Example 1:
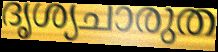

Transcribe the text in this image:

ദൃശ്യചാരുത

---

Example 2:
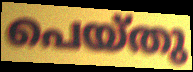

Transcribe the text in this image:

പെയ്തു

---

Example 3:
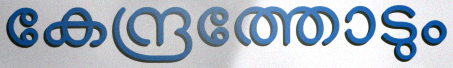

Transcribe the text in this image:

കേന്ദ്രത്തോടും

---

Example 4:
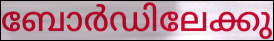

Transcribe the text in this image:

ബോർഡിലേക്കു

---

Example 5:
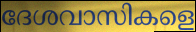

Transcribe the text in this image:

ദേശവാസികളെ